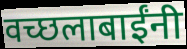
वच्छलाबाईंनी